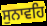
ਸੁਨਾਵਹਿ